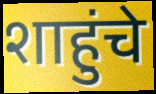
शाहुंचे